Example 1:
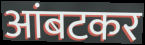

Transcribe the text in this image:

आंबटकर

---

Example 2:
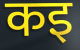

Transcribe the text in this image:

कइ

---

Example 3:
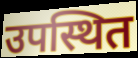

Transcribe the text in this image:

उपस्थित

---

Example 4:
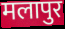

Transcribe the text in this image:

मलापुर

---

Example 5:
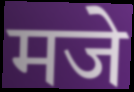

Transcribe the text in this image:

मजे